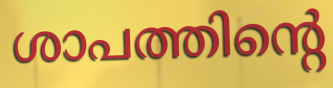
ശാപത്തിന്റെ